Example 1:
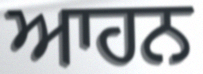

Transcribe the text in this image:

ਆਹਨ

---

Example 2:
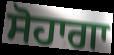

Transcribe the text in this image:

ਸੋਹਾਗਾ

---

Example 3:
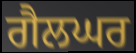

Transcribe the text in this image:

ਗੈਲਘਰ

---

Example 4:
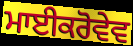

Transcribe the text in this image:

ਮਾਈਕਰੋਵੇਵ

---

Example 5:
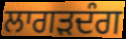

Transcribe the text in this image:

ਲਾਗੜਦੰਗ